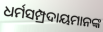
ଧର୍ମସମ୍ପ୍ରଦାୟମାନଙ୍କ